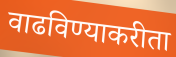
वाढविण्याकरीता